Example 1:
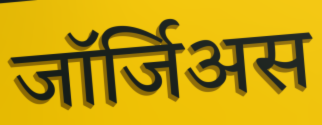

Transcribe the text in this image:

जॉर्जिअस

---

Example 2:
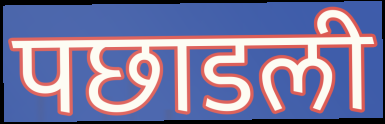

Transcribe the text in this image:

पछाडली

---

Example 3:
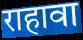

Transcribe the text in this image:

राहावा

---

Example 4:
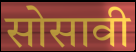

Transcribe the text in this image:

सोसावी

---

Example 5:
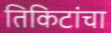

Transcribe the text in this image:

तिकिटांचा